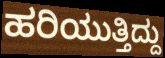
ಹರಿಯುತ್ತಿದ್ದು